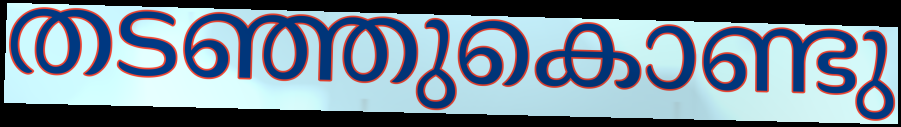
തടഞ്ഞുകൊണ്ടു